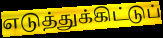
எடுத்துக்கிட்டுப்